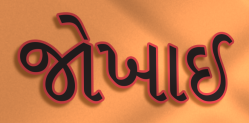
જોખાઈ